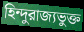
হিন্দুরাজ্যভুক্ত